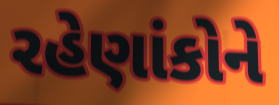
રહેણાંકોને